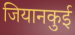
जियानकुई